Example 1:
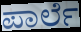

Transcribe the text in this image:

ಪಾರ್ಲೆ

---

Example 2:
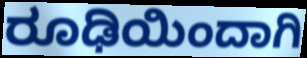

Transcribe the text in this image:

ರೂಢಿಯಿಂದಾಗಿ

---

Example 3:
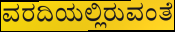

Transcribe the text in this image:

ವರದಿಯಲ್ಲಿರುವಂತೆ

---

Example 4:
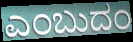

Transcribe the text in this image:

ಎಂಬುದಂ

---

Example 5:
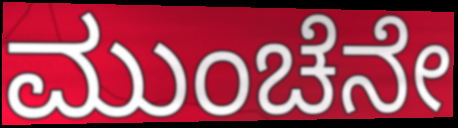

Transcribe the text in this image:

ಮುಂಚೆನೇ